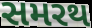
સમરથ